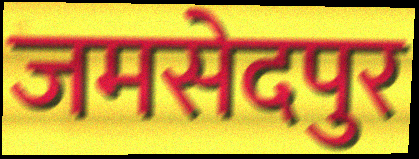
जमसेदपुर